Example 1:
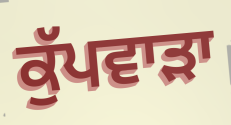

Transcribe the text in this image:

ਕੁੱਪਵਾੜਾ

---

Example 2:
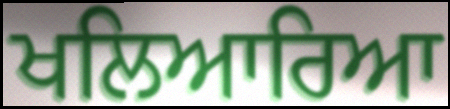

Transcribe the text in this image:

ਖਲਿਆਰਿਆ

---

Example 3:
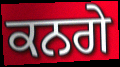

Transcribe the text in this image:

ਕਨਗੇ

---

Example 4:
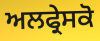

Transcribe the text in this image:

ਅਲਫ੍ਰੇਸਕੋ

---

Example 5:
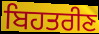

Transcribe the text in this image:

ਬਿਹਤਰੀਣ